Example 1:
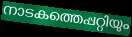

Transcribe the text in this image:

നാടകത്തെപ്പറ്റിയും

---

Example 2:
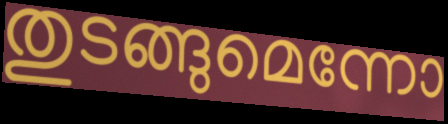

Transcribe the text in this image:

തുടങ്ങുമെന്നോ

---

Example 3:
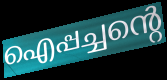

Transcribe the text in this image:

ഐപ്പച്ചന്റെ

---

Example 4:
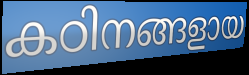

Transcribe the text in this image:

കഠിനങ്ങളായ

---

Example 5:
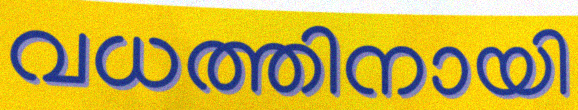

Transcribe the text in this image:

വധത്തിനായി